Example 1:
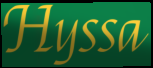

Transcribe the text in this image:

Hyssa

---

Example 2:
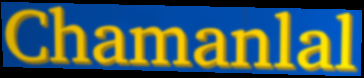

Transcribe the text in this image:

Chamanlal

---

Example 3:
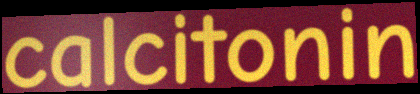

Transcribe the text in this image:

calcitonin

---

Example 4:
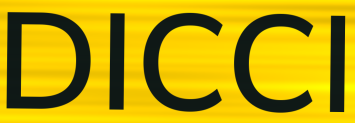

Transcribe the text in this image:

DICCI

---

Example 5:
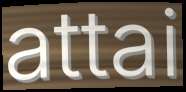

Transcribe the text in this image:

attai